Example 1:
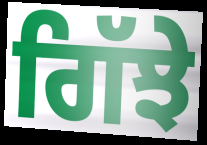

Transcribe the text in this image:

ਗਿੱਝੇ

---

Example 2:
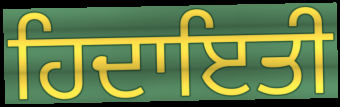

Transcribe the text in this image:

ਹਿਦਾਇਤੀ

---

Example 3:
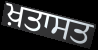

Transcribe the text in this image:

ਖ਼ਤਾਸਤ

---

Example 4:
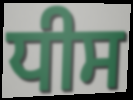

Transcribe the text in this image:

ਧੀਸ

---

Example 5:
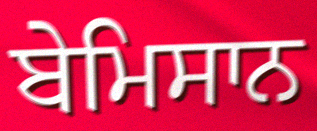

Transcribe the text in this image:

ਬੇਮਿਸਾਨ